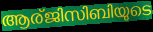
ആര്ജിസിബിയുടെ